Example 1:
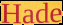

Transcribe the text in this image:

Hade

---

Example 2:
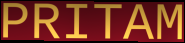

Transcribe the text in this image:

PRITAM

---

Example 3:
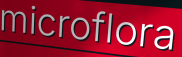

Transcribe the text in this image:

microflora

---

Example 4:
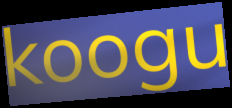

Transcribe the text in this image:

koogu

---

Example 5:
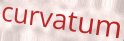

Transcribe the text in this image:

curvatum